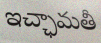
ఇచ్ఛామతీ